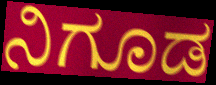
ನಿಗೂಡ